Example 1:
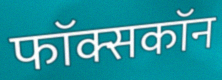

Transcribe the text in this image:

फॉक्सकॉन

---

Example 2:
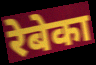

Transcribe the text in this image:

रेबेका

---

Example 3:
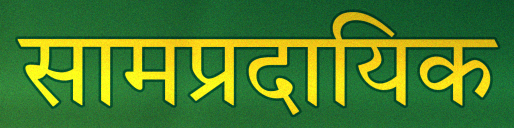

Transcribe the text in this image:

सामप्रदायिक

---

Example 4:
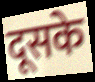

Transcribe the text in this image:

दूसके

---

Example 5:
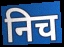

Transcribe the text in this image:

निच